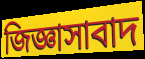
জিজ্ঞাসাবাদ